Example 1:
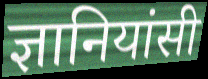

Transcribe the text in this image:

ज्ञानियांसी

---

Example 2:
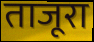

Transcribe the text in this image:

ताजूरा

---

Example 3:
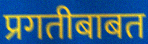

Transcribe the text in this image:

प्रगतीबाबत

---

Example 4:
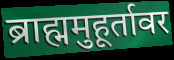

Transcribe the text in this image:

ब्राह्ममुहूर्तावर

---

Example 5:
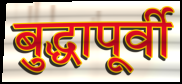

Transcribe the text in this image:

बुद्धापूर्वी